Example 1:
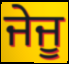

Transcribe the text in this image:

ਜੇਜੂ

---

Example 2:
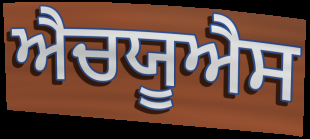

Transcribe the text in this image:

ਐਚਯੂਐਸ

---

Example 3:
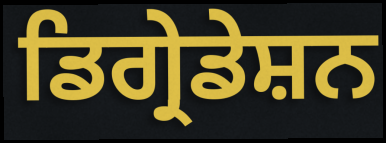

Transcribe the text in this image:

ਡਿਗ੍ਰੇਡੇਸ਼ਨ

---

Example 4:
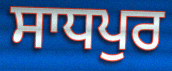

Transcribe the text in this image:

ਸਾਧਪੁਰ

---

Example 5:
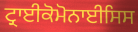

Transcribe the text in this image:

ਟ੍ਰਾਈਕੋਮੋਨਾਈਸਿਸ